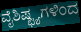
ವೈಶಿಷ್ಟ್ಯಗಳಿಂದ